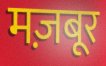
मज़बूर